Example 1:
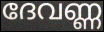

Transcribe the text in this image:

ദേവണ്ണ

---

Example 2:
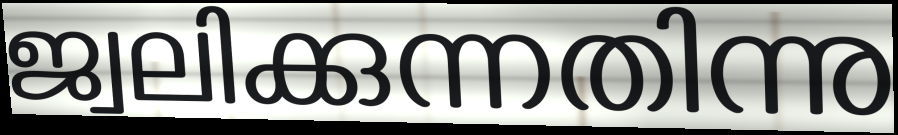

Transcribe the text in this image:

ജ്വലിക്കുന്നതിന്നു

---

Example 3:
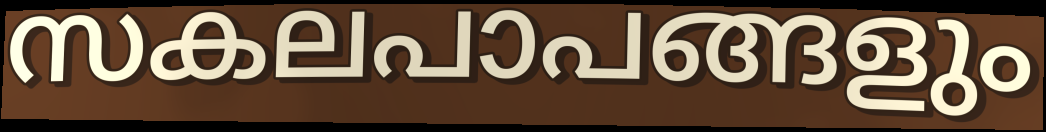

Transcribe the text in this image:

സകലപാപങ്ങളും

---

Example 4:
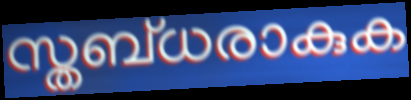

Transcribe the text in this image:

സ്തബ്ധരാകുക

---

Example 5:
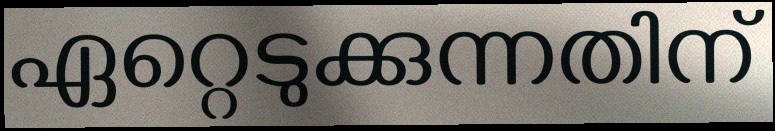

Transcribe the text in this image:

ഏറ്റെടുക്കുന്നതിന്